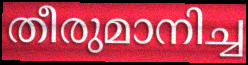
തീരുമാനിച്ച